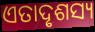
ଏତାଦୃଶସ୍ୟ